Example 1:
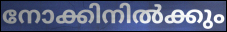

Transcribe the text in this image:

നോക്കിനിൽക്കും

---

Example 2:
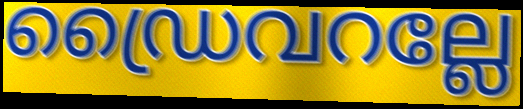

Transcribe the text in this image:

ഡ്രൈവറല്ലേ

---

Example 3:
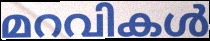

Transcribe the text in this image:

മറവികൾ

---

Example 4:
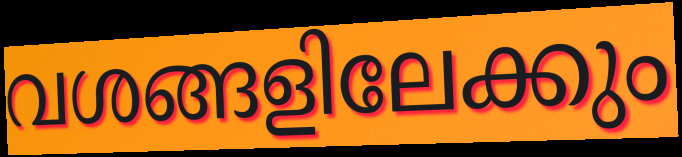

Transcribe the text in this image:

വശങ്ങളിലേക്കും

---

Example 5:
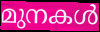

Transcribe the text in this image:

മുനകൾ